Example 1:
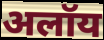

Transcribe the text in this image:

अलॉय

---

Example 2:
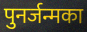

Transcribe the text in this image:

पुनर्जन्मका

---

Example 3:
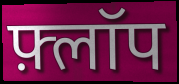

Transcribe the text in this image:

फ़्लॉप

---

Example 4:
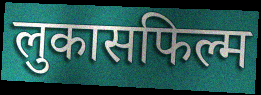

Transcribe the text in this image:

लुकासफिल्म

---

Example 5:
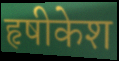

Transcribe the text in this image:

हृषीकेश